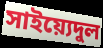
সাইয়্যেদুল